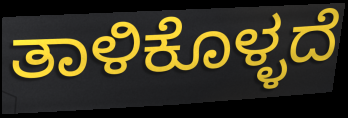
ತಾಳಿಕೊಳ್ಳದೆ